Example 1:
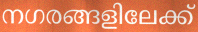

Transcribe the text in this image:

നഗരങ്ങളിലേക്ക്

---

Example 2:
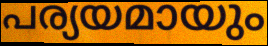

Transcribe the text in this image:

പര്യയമായും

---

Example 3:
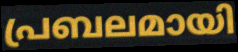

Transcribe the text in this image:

പ്രബലമായി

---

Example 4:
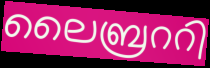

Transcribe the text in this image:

ലൈബ്രററി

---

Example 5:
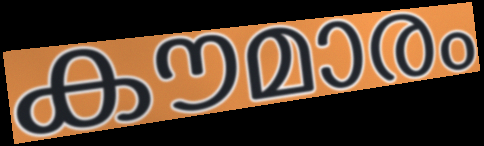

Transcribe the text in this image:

കൗമാരം